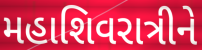
મહાશિવરાત્રીને